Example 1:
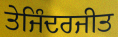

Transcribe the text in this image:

ਤੇਜਿੰਦਰਜੀਤ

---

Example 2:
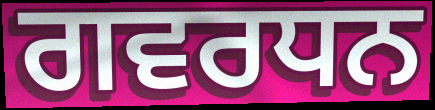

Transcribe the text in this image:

ਗਵਰਧਨ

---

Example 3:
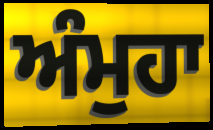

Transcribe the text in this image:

ਅੰਮੁਹਾ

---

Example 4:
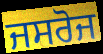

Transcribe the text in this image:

ਜਸਰੋਜ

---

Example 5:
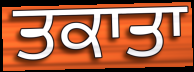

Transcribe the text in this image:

ਤਕਾਤਾ